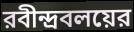
রবীন্দ্রবলয়ের